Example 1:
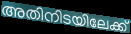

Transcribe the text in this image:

അതിനിടയിലേക്ക്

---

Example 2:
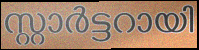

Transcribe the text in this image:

സ്റ്റാർട്ടറായി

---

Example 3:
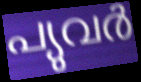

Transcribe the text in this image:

പ്യുവർ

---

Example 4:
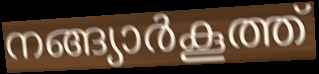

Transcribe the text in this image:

നങ്ങ്യാർകൂത്ത്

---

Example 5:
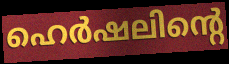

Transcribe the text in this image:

ഹെർഷലിന്റെ